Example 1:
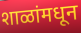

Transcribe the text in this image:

शाळांमधून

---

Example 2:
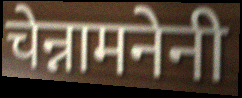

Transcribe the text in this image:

चेन्नामनेनी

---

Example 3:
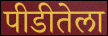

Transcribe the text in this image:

पीडीतेला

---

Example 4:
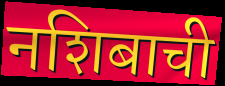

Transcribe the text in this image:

नशिबाची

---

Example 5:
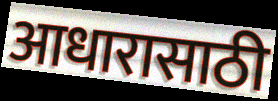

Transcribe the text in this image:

आधारासाठी